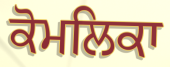
ਕੋਮਲਿਕਾ